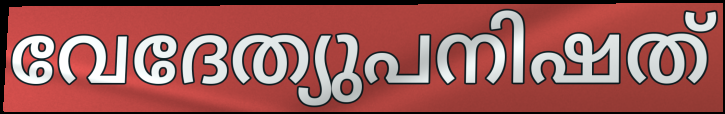
വേദേത്യുപനിഷത്